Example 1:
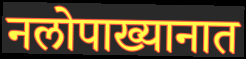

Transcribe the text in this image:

नलोपाख्यानात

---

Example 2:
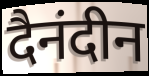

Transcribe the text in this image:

दैनंदीन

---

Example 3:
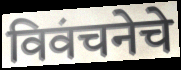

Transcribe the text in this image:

विवंचनेचे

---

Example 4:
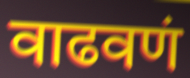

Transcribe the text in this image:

वाढवणं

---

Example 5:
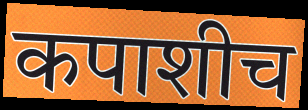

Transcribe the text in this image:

कपाशीच